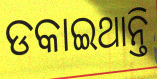
ଡକାଇଥାନ୍ତି